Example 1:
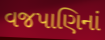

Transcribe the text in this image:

વજપાણિનાં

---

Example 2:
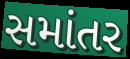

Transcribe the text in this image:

સમાંતર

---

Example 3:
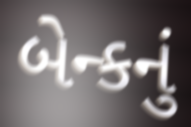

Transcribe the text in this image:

બેન્કનું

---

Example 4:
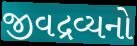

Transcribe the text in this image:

જીવદ્રવ્યનો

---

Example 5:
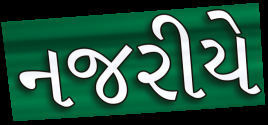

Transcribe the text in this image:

નજરીયે